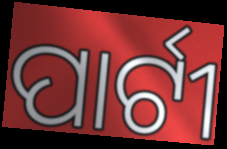
ପାର୍ଟୀ